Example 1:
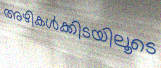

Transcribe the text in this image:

അഴികൾക്കിടയിലൂടെ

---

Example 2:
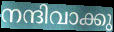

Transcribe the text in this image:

നന്ദിവാക്കു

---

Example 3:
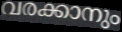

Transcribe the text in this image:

വരക്കാനും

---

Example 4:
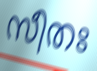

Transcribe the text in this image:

സീതഃ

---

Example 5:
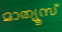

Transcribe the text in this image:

മാത്യൂസ്